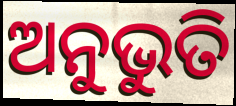
ଅନୁଭୁତି